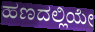
ಹಣದಲ್ಲಿಯೇ